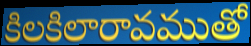
కిలకిలారావముతో